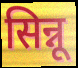
सिन्नू